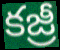
కజ్రీ